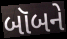
બૉબને